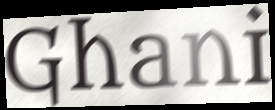
Ghani